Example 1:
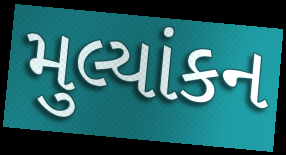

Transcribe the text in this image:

મુલ્યાંકન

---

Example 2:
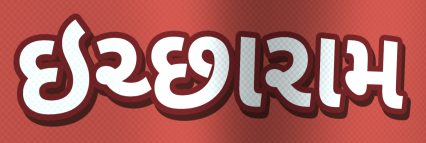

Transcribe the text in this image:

ઇચ્છારામ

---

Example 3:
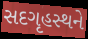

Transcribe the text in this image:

સદગૃહસ્થને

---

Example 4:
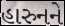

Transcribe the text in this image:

હારુનને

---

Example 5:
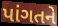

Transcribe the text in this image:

પાંગતને